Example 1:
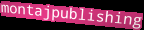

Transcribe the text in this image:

montajpublishing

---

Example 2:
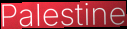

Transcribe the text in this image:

Palestine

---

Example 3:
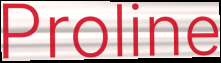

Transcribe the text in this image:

Proline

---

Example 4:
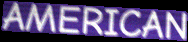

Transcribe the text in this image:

AMERICAN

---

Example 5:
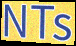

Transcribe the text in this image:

NTs